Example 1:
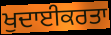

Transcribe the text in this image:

ਖੁਦਾਈਕਰਤਾ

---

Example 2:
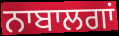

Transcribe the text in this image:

ਨਾਬਾਲਗਾਂ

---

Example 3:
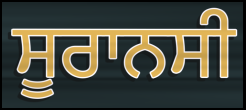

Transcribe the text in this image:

ਸੂਰਾਨਸੀ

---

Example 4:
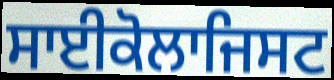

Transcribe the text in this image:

ਸਾਈਕੋਲਾਜਿਸਟ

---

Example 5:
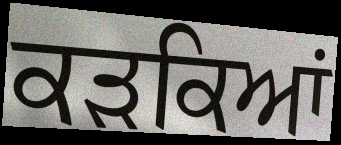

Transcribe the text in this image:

ਕੜਕਿਆਂ